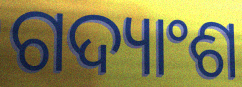
ଗଦ୍ୟାଂଶ